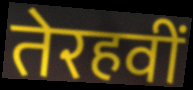
तेरहवीं